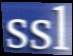
ssl